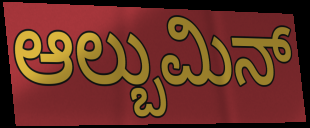
ಆಲ್ಬುಮಿನ್